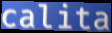
calita